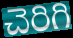
చెరిగి